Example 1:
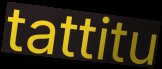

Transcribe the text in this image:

tattitu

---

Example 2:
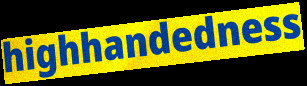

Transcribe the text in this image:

highhandedness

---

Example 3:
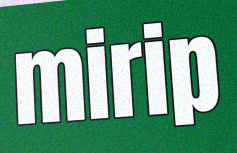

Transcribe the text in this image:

mirip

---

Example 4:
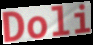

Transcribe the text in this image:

Doli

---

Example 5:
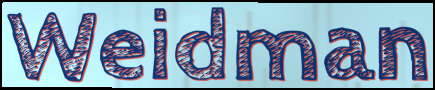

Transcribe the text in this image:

Weidman